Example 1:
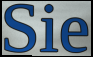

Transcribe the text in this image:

Sie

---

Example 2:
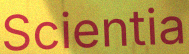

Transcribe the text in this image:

Scientia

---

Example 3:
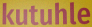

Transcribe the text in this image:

kutuhle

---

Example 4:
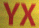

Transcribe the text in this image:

YX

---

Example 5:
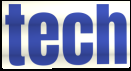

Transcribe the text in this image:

tech